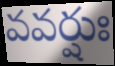
వవర్షుః